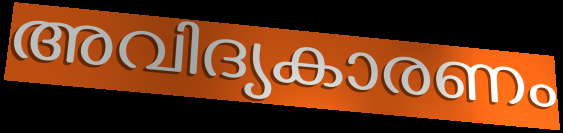
അവിദ്യകാരണം